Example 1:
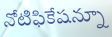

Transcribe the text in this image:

నోటిఫికేషన్నూ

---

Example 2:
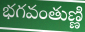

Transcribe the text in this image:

భగవంతుణ్ణి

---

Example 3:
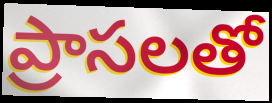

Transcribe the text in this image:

ప్రాసలతో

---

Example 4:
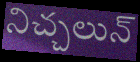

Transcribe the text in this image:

నిచ్చలున్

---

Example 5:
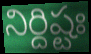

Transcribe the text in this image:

నిర్దిష్టః